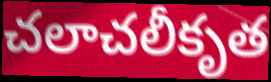
చలాచలీకృత